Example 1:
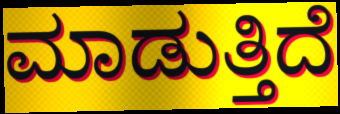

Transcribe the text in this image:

ಮಾಡುತ್ತಿದೆ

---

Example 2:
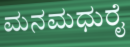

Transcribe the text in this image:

ಮನಮಧುರೈ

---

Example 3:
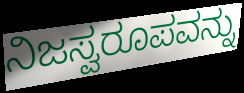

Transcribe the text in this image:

ನಿಜಸ್ವರೂಪವನ್ನು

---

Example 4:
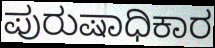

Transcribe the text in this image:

ಪುರುಷಾಧಿಕಾರ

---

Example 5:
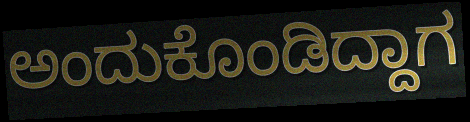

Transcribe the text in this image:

ಅಂದುಕೊಂಡಿದ್ದಾಗ